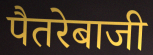
पैतरेबाजी